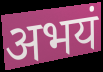
अभयं